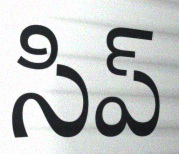
సిప్